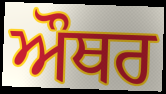
ਔਥਰ